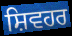
ਸ਼ਿਵਹਰ